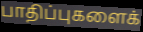
பாதிப்புகளைக்